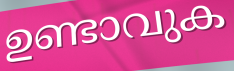
ഉണ്ടാവുക